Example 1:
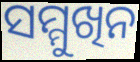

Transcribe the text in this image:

ସମ୍ମୁଖିନ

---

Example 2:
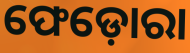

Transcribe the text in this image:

ଫେଡ଼ୋରା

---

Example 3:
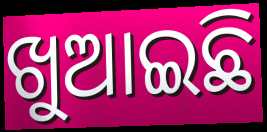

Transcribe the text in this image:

ଖୁଆଇଛି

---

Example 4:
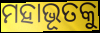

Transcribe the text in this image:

ମହାଭୂତକୁ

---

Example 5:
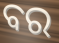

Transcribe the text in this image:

ବର